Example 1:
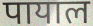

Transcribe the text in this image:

पायाल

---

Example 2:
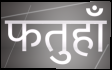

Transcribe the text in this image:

फतुहाँ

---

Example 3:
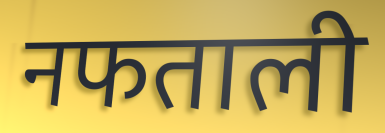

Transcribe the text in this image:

नफताली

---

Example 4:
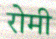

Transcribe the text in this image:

रोमी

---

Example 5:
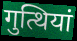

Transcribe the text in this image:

गुत्थियां